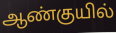
ஆண்குயில்